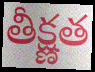
తీక్ష్ణత